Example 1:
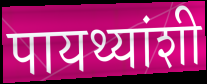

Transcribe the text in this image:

पायथ्यांशी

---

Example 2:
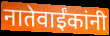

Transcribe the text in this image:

नातेवाईंकांनी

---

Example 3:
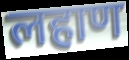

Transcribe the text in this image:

लहाण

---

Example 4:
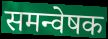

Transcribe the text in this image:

समन्वेषक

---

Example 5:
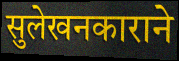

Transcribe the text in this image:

सुलेखनकाराने